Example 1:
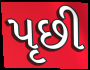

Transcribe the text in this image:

પૃછી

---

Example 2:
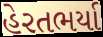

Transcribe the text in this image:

હેરતભર્યા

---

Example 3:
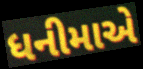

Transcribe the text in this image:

ધનીમાએ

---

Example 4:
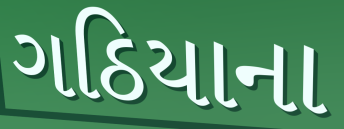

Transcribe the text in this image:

ગઠિયાના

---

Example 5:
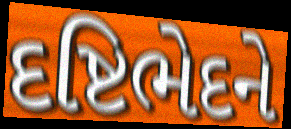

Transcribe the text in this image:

દષ્ટિભેદને